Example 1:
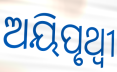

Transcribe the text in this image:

ଅୟିପୃଥ୍ୱୀ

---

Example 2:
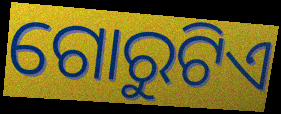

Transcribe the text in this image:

ଗୋରୁଟିଏ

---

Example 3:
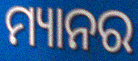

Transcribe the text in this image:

ମ୍ୟାନର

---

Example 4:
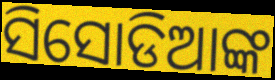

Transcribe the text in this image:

ସିସୋଡିଆଙ୍କ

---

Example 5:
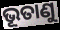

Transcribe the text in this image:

ଭୂତାଣୁ